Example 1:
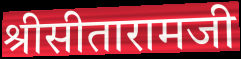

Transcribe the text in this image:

श्रीसीतारामजी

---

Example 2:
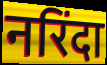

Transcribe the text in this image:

नरिंदा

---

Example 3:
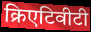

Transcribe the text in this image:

क्रिएटिवीटी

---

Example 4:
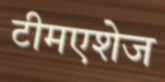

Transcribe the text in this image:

टीमएशेज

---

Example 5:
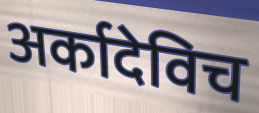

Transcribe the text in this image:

अर्कादेविच